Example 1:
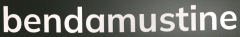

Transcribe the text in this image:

bendamustine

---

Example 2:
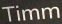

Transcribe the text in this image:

Timm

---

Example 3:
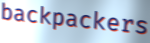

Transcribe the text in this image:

backpackers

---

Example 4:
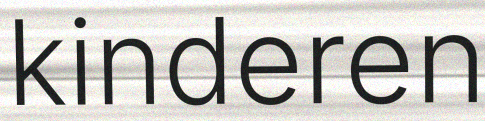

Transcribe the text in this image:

kinderen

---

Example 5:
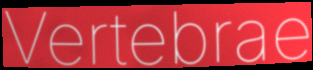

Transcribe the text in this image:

Vertebrae